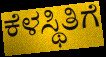
ಕೆಳಸ್ಥಿತಿಗೆ